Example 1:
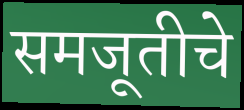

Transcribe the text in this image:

समजूतीचे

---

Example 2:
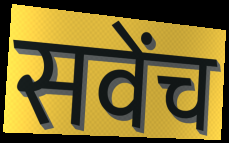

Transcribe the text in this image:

सवेंच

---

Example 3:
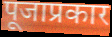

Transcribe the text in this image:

पूजाप्रकार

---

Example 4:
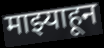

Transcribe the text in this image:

माझ्याहून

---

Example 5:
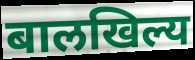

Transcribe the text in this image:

बालखिल्य